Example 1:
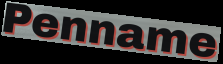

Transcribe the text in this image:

Penname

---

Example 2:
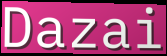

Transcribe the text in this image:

Dazai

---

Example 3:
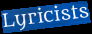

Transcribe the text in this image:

Lyricists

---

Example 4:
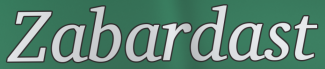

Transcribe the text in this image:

Zabardast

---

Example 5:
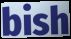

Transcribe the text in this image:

bish